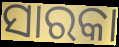
ସାରକା